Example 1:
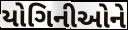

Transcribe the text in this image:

યોગિનીઓને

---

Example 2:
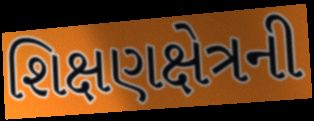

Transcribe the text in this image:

શિક્ષણક્ષેત્રની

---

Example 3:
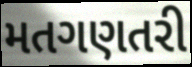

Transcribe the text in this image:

મતગણતરી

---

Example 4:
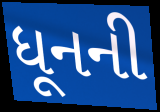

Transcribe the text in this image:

ધૂનની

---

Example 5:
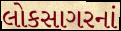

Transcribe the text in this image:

લોકસાગરનાં